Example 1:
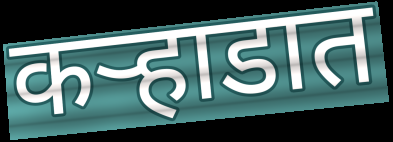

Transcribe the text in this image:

कऱ्हाडात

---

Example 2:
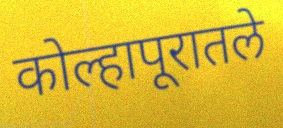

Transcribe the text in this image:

कोल्हापूरातले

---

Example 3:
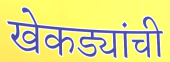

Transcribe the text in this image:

खेकड्यांची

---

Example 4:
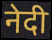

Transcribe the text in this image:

नेदी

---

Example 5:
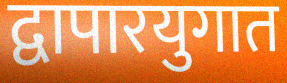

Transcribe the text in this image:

द्वापारयुगात